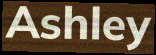
Ashley